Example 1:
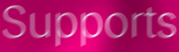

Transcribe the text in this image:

Supports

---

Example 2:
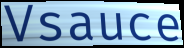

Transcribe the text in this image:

Vsauce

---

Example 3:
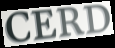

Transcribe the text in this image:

CERD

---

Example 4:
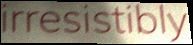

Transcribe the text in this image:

irresistibly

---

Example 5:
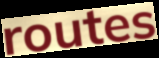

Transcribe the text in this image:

routes